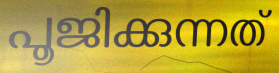
പൂജിക്കുന്നത്